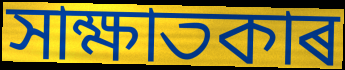
সাক্ষাতকাৰ